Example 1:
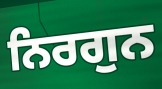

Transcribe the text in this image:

ਨਿਰਗੁਨ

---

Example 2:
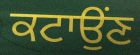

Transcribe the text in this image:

ਕਟਾਉਂਣ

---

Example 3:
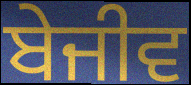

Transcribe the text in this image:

ਬੇਜੀਵ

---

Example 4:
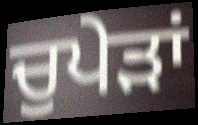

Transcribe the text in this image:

ਚੁਪੇੜਾਂ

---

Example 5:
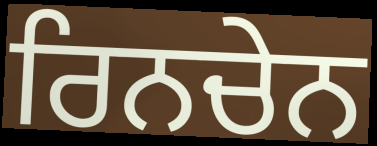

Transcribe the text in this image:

ਰਿਨਚੇਨ